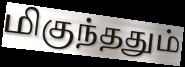
மிகுந்ததும்